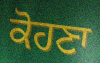
ਕੋਹਣਾ